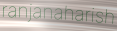
ranjanaharish